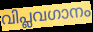
വിപ്ലവഗാനം